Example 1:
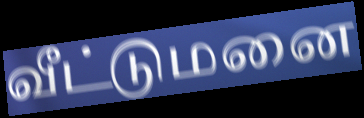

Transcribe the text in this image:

வீட்டுமனை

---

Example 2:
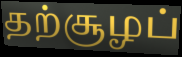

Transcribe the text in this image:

தற்சூழப்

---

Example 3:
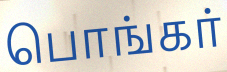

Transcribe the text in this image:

பொங்கர்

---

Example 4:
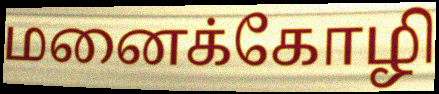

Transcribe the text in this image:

மனைக்கோழி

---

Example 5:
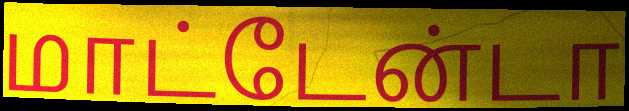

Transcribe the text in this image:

மாட்டேன்டா